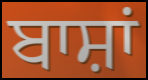
ਬਾਸ਼ਾਂ